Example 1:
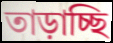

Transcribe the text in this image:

তাড়াচ্ছি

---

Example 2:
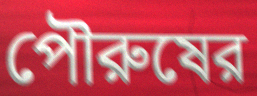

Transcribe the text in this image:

পৌরুষের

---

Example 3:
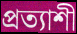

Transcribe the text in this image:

প্রত্যাশী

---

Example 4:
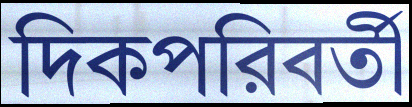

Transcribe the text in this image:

দিকপরিবর্তী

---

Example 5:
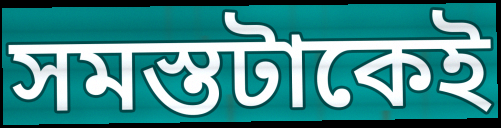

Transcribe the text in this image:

সমস্তটাকেই